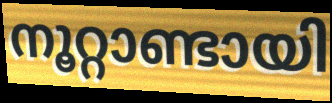
നൂറ്റാണ്ടായി